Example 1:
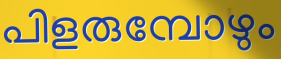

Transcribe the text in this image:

പിളരുമ്പോഴും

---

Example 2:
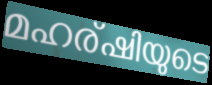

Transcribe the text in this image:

മഹര്ഷിയുടെ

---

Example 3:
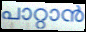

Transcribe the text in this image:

പാറ്റാൻ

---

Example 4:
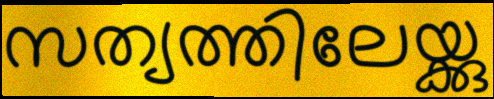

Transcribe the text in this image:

സത്യത്തിലേയ്ക്കു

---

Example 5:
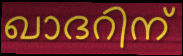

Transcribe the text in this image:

ഖാദറിന്